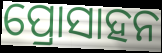
ପ୍ରୋସାହନ